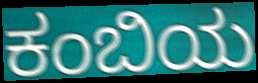
ಕಂಬಿಯ